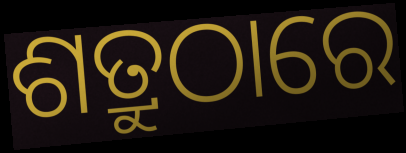
ଶତ୍ରୁଠାରେ